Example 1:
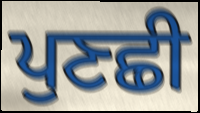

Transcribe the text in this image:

ਪੁਣਛੀ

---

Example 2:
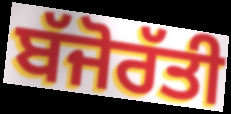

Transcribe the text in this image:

ਬੱਜੋਰੱਤੀ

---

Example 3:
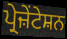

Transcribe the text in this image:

ਪ੍ਰੇਜ਼ੇਂਟੇਸ਼ਨ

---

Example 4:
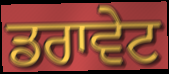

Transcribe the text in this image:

ਡਰਾਵੇਟ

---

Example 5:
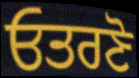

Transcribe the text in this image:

ਓਤਰਣੋ